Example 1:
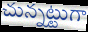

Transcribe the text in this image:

చున్నట్టుగా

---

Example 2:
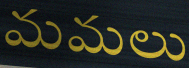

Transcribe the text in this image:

మమలు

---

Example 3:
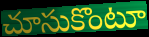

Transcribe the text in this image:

చూసుకొంటూ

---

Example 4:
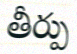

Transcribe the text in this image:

తీర్పు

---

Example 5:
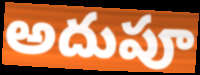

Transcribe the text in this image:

అదుపూ